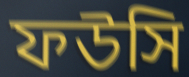
ফউসি